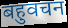
बहुवचन